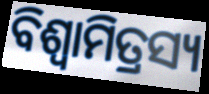
ବିଶ୍ଵାମିତ୍ରସ୍ୟ